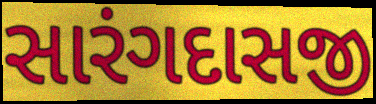
સારંગદાસજી